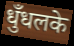
धुँधलके